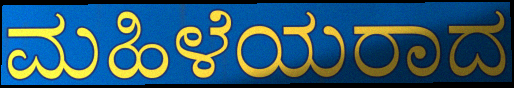
ಮಹಿಳೆಯರಾದ